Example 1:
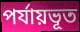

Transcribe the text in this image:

পর্যায়ভূত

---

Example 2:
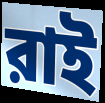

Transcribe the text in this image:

রাই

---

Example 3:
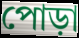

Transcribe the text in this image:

পোড়া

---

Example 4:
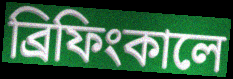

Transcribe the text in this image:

ব্রিফিংকালে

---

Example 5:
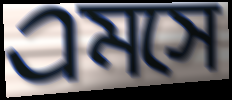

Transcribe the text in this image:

এমসে